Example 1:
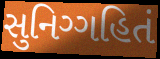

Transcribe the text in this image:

સુનિગ્ગહિતં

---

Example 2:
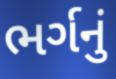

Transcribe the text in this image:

ભર્ગનું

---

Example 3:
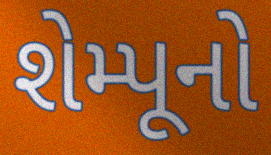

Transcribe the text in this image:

શેમ્પૂનો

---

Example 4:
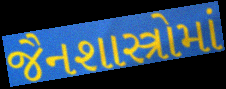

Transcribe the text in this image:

જૈનશાસ્ત્રોમાં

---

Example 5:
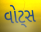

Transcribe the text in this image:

વોટ્સ